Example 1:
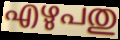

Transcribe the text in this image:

എഴുപതു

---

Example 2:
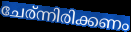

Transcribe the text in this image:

ചേര്ന്നിരിക്കണം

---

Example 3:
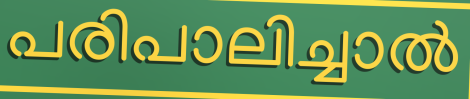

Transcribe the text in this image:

പരിപാലിച്ചാൽ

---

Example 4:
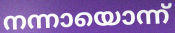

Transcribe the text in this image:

നന്നായൊന്ന്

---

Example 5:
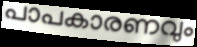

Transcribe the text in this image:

പാപകാരണവും